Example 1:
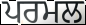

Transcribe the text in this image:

ਪਰਮਲ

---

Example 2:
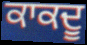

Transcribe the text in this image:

ਕਾਕਦੂ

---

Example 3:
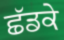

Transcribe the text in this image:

ਛੱਡਕੇ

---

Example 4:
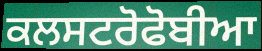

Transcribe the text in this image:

ਕਲਸਟਰੋਫੋਬੀਆ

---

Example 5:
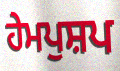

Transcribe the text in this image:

ਹੇਮਪੁਸ਼ਪ